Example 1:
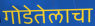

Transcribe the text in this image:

गोडेतेलाचा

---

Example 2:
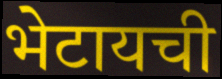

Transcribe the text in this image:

भेटायची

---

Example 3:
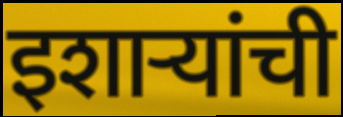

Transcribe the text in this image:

इशाऱ्यांची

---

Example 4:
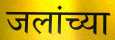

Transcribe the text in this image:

जलांच्या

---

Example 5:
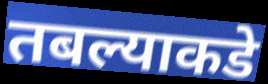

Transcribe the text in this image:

तबल्याकडे